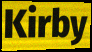
Kirby